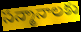
సన్మానాలకు